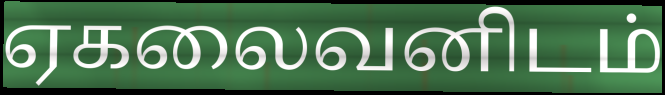
ஏகலைவனிடம்